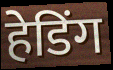
हेडिंग